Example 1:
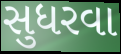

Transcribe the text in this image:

સુધરવા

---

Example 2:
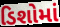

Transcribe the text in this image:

ડિશોમાં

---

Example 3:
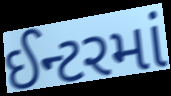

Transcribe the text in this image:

ઈન્ટરમાં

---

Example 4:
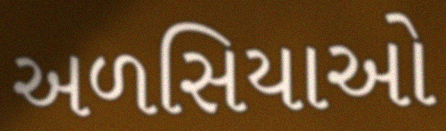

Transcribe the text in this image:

અળસિયાઓ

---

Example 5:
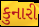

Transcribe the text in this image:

કુનારી